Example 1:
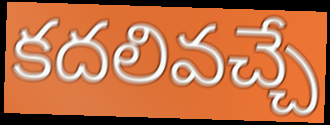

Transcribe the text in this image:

కదలివచ్చే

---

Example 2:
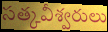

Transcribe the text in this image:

సత్కవీశ్వరులు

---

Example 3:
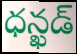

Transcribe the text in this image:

ధన్ఖడ్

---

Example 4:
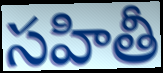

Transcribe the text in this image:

సహితీ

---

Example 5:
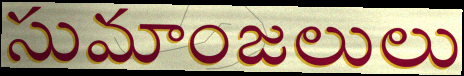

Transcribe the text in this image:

సుమాంజలులు